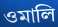
ওমালি